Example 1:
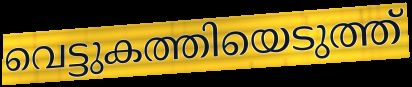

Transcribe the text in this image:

വെട്ടുകത്തിയെടുത്ത്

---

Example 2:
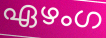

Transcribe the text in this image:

ഏഴംഗ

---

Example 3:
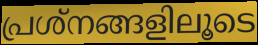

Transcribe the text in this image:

പ്രശ്നങ്ങളിലൂടെ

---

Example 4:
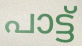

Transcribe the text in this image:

പാട്ട്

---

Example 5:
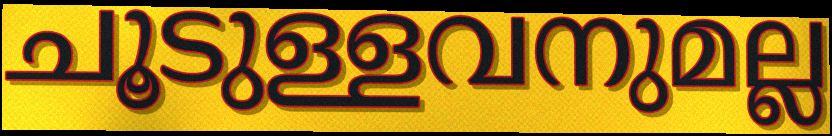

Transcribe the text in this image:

ചൂടുള്ളവനുമല്ല